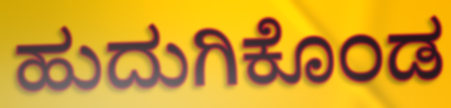
ಹುದುಗಿಕೊಂಡ